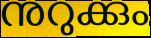
നുറുക്കും